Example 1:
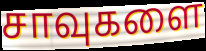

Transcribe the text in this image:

சாவுகளை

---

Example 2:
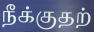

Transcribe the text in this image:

நீக்குதற்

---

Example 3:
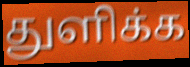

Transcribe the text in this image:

துளிக்க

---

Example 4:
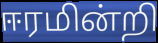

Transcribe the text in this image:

ஈரமின்றி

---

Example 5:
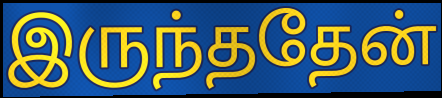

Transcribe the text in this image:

இருந்ததேன்